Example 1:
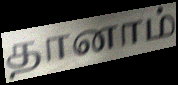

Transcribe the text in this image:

தானாம்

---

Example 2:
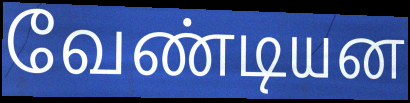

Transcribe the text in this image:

வேண்டியன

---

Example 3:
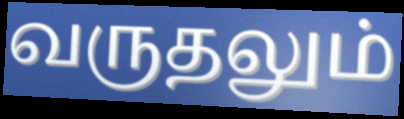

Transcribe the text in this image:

வருதலும்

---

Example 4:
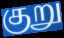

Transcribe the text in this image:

குறு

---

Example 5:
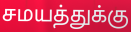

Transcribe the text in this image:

சமயத்துக்கு